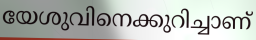
യേശുവിനെക്കുറിച്ചാണ്